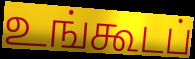
உங்கூடப்